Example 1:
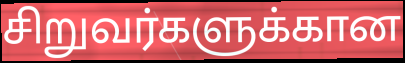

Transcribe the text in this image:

சிறுவர்களுக்கான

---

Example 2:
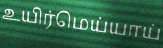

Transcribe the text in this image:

உயிர்மெய்யாய்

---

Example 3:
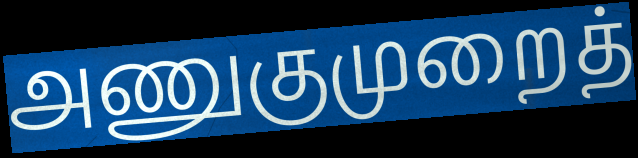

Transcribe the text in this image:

அணுகுமுறைத்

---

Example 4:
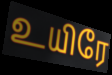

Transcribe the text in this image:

உயிரே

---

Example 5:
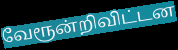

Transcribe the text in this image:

வேரூன்றிவிட்டன